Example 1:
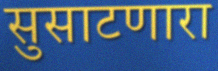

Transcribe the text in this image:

सुसाटणारा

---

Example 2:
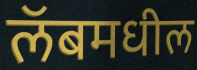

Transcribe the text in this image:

लॅबमधील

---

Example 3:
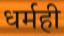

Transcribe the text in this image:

धर्मही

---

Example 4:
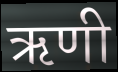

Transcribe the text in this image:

ऋणी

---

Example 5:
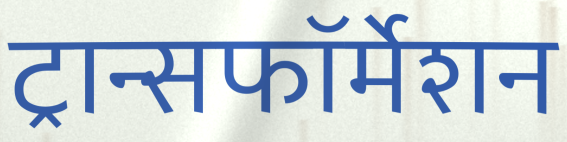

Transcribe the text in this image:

ट्रान्सफॉर्मेशन